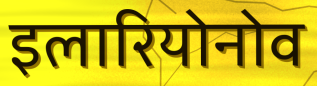
इलारियोनोव